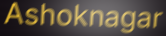
Ashoknagar